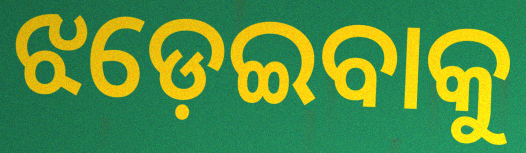
ଝଡ଼େଇବାକୁ